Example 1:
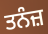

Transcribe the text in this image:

ਤਨੰਜ਼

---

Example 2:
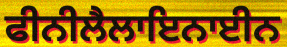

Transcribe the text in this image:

ਫੀਨੀਲੈਲਾਇਨਾਈਨ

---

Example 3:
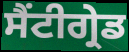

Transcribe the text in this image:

ਸੈਂਟੀਗ੍ਰੇਡ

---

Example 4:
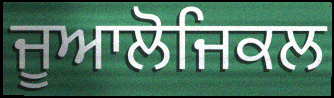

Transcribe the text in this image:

ਜੂਆਲੋਜਿਕਲ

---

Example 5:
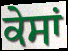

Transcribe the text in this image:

ਕੇਸਾਂ